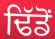
ਢਿੱਡੋਂ